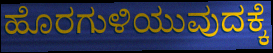
ಹೊರಗುಳಿಯುವುದಕ್ಕೆ